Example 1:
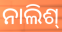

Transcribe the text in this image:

ନାଲିଶ୍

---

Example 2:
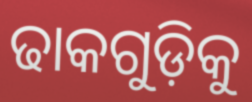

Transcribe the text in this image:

ଢାକଗୁଡ଼ିକୁ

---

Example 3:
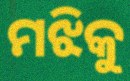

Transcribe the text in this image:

ମଝିକୁ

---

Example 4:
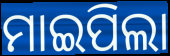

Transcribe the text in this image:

ମାଇପିଲା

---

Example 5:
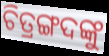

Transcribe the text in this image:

ଚିତ୍ରଙ୍ଗଦଙ୍କୁ